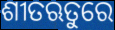
ଶୀତଋତୁରେ